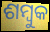
ଶମ୍ବୁକ